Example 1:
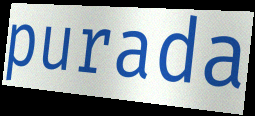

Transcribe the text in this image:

purada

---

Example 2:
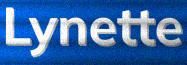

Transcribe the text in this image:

Lynette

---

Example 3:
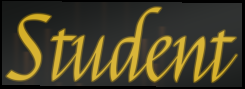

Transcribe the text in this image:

Student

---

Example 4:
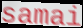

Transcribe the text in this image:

samai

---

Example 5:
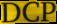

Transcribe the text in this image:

DCP